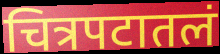
चित्रपटातलं